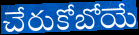
చేరుకోబోయే